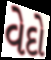
વેદો